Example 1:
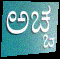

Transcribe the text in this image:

ಅಚ್ಚ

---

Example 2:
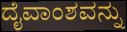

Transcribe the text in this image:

ದೈವಾಂಶವನ್ನು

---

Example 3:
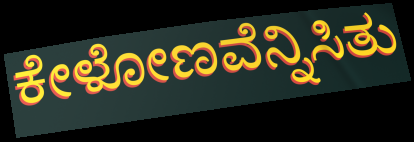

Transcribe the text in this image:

ಕೇಳೋಣವೆನ್ನಿಸಿತು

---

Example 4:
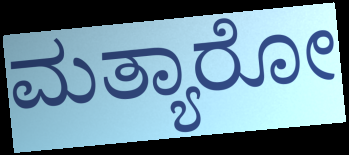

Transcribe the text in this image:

ಮತ್ಯಾರೋ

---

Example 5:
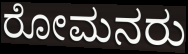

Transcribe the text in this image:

ರೋಮನರು